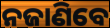
ନଜାଣିବେ